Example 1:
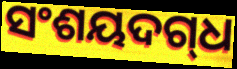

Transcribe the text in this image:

ସଂଶୟଦଗ୍‌ଧ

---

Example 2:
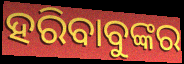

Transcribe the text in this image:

ହରିବାବୁଙ୍କର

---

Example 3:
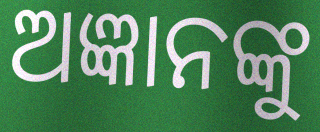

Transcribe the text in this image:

ଅଜ୍ଞାନଙ୍କୁ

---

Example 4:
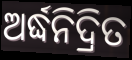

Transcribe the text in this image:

ଅର୍ଦ୍ଧନିଦ୍ରିତ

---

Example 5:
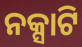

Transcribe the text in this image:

ନକ୍ସାଟି